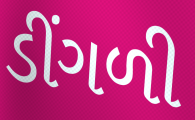
ડીંગળી